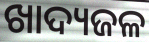
ଖାଦ୍ୟଜଳ